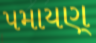
પમાયણ્